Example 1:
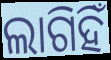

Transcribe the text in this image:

ଲାଗିହିଁ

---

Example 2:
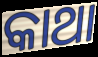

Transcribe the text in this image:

କାଥା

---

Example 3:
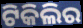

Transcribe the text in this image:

ଟିକିଲିର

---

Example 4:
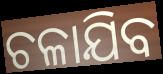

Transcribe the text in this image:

ଚଳାଯିବ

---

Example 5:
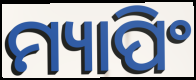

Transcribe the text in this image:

ମ୍ୟାପିଂ